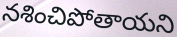
నశించిపోతాయని